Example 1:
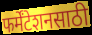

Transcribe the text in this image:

फर्मेंटेशनसाठी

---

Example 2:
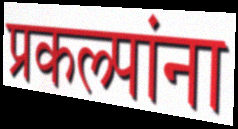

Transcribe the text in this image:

प्रकल्पांना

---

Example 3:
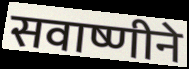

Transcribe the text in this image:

सवाष्णीने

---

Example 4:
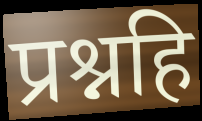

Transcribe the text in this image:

प्रश्नहि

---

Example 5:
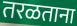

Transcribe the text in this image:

तरळताना